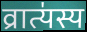
व्रात्य॑स्य